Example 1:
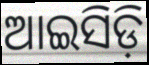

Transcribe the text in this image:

ଆଇସିଡ଼ି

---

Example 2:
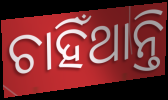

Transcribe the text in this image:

ଚାହିଁଥାନ୍ତି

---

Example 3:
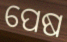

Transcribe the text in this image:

ପେଷ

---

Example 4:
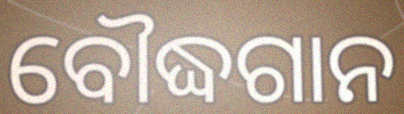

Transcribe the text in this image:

ବୌଦ୍ଧଗାନ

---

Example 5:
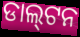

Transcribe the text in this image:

ଡାଲ୍‌ଟନ